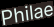
Philae